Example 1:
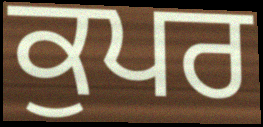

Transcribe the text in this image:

ਕੁਪਰ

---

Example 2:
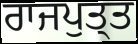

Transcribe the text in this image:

ਰਾਜਪੁਤ੍ਤ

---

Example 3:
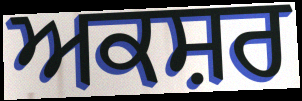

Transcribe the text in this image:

ਅਕਸ਼ਰ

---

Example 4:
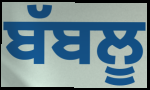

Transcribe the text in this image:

ਬੱਬਲੂ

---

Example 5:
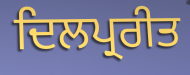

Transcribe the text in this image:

ਦਿਲਪ੍ਰਰੀਤ